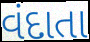
વંદાતા